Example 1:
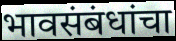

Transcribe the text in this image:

भावसंबंधांचा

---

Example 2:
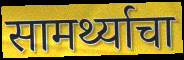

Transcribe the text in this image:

सामर्थ्याचा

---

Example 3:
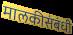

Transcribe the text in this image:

मालकीसंबंधी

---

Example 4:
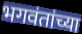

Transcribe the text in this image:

भगवंतांच्या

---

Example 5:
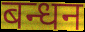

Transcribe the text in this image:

बन्धन